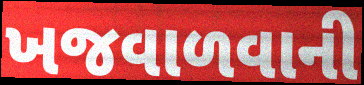
ખજવાળવાની